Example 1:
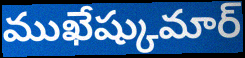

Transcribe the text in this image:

ముఖేష్కుమార్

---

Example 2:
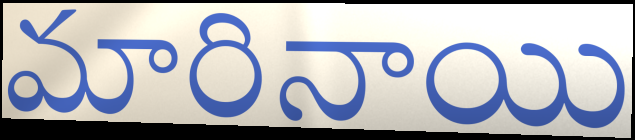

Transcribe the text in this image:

మారినాయి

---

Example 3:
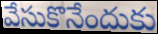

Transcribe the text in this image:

వేసుకొనేందుకు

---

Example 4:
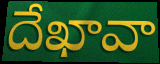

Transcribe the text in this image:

దేఖావా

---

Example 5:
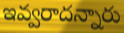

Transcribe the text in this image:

ఇవ్వరాదన్నారు